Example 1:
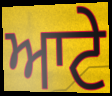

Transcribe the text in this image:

ਆਟੇ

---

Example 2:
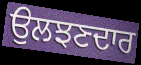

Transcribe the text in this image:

ਉਲਝਣਦਾਰ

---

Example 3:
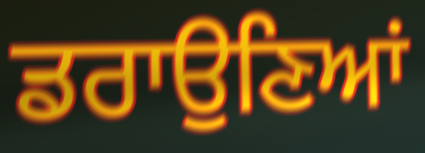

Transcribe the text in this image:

ਡਰਾਉਣਿਆਂ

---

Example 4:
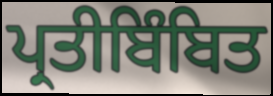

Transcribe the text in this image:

ਪ੍ਰਤੀਬਿੰਬਿਤ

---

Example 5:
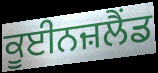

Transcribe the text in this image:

ਕੂਈਨਜ਼ਲੈਂਡ